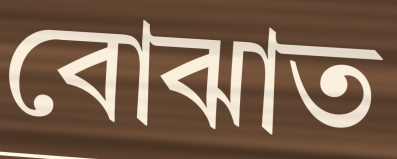
বোঝাত